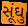
સૂંઘુ